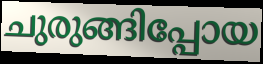
ചുരുങ്ങിപ്പോയ